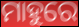
ମାହୁରେ